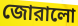
জোরালো